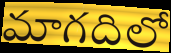
మాగదిలో